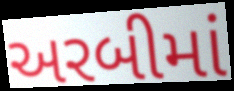
અરબીમાં